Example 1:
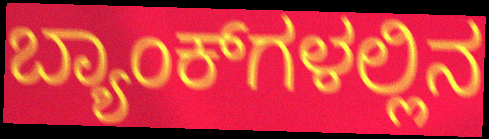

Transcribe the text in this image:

ಬ್ಯಾಂಕ್‌ಗಳಲ್ಲಿನ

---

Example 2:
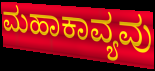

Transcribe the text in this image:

ಮಹಾಕಾವ್ಯವು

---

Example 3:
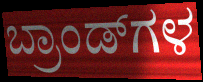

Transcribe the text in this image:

ಬ್ರಾಂಡ್‌ಗಳ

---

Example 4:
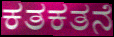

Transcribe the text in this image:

ಕತಕತನೆ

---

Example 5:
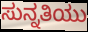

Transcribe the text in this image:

ಸುನ್ನತಿಯು